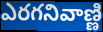
ఎరగనివాణ్ణి